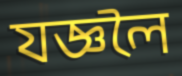
যজ্ঞলৈ